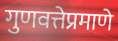
गुणवत्तेप्रमाणे